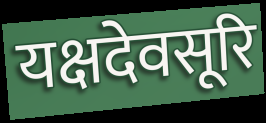
यक्षदेवसूरि